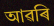
আৱৰি